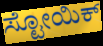
ಸ್ಟೋಯಿಕ್